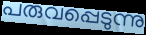
പരുവപ്പെടുന്നു